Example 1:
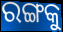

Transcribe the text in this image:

ରଙ୍ଗକୁ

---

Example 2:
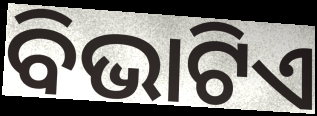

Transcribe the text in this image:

ବିଭାଟିଏ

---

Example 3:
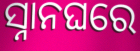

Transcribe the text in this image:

ସ୍ନାନଘରେ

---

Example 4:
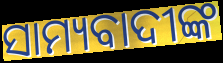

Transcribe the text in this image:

ସାମ୍ୟବାଦୀଙ୍କ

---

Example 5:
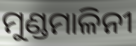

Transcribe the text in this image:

ମୁଣ୍ଡମାଳିନୀ